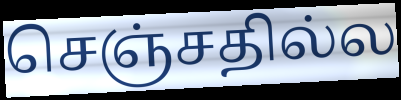
செஞ்சதில்ல